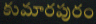
కుమారపురం